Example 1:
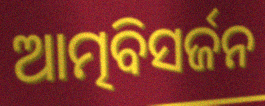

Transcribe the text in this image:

ଆତ୍ମବିସର୍ଜନ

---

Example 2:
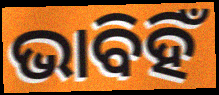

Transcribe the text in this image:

ଭାବିହିଁ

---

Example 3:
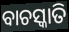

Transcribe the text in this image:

ବାଚସ୍କାତି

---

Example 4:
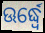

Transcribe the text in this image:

ଊର୍ଦ୍ଧ୍ୱେ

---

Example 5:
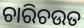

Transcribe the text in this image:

ଚାରିଚଉତ